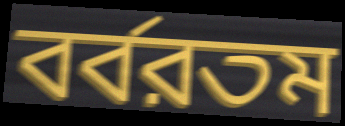
বর্বরতম